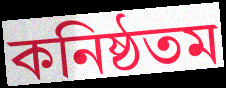
কনিষ্ঠতম